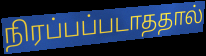
நிரப்பப்படாததால்